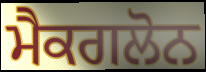
ਮੈਕਗਲੋਨ